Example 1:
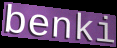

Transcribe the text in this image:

benki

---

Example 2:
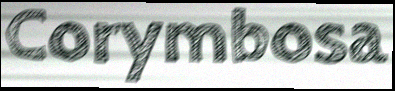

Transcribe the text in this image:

Corymbosa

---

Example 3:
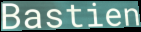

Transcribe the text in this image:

Bastien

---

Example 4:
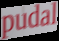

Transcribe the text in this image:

pudal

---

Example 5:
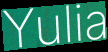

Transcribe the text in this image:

Yulia